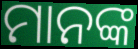
ମାନଙ୍କ